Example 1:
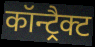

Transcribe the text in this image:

कॉन्‍ट्रैक्‍ट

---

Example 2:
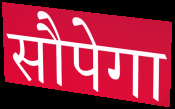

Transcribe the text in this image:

सौपेगा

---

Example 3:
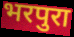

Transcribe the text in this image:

भरपुरा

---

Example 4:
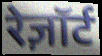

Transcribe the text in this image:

रेज़ॉर्ट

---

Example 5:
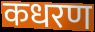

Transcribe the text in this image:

कधरण